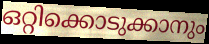
ഒറ്റിക്കൊടുക്കാനും